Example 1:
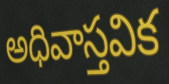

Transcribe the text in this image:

అధివాస్తవిక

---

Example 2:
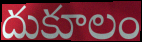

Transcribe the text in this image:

దుకూలం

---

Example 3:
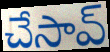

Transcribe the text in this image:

చేసావ్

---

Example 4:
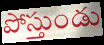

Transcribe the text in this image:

పోస్తుండు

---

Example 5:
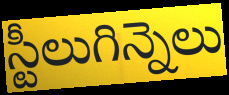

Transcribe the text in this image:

స్టీలుగిన్నెలు